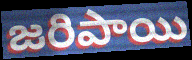
జరిపాయి